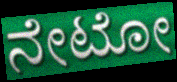
ನೇಟೋ